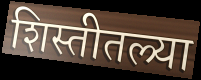
शिस्तीतल्या